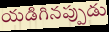
యడిగినప్పుడు